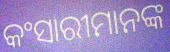
କଂସାରୀମାନଙ୍କ